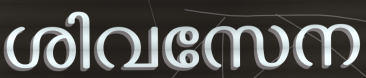
ശിവസേന